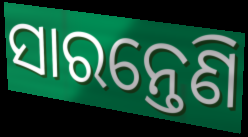
ସାରନ୍ତେଣି